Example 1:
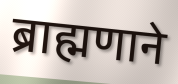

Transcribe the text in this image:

ब्राह्मणाने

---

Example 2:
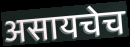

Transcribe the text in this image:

असायचेच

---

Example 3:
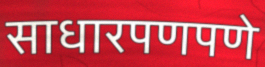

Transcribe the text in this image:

साधारपणपणे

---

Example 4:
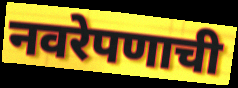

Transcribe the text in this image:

नवरेपणाची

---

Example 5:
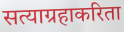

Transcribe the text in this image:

सत्याग्रहाकरिता